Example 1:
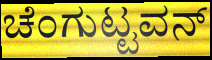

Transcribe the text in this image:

ಚೆಂಗುಟ್ಟವನ್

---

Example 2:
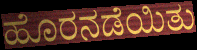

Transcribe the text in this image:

ಹೊರನಡೆಯಿತು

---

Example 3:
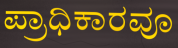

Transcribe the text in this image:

ಪ್ರಾಧಿಕಾರವೂ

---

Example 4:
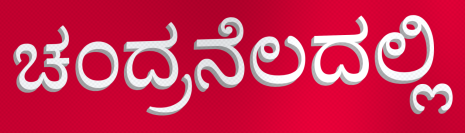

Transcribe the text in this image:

ಚಂದ್ರನೆಲದಲ್ಲಿ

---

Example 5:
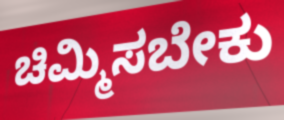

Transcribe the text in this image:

ಚಿಮ್ಮಿಸಬೇಕು